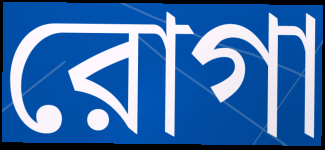
রোগা